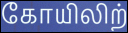
கோயிலிற்